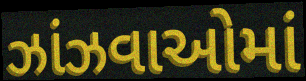
ઝાંઝવાઓમાં